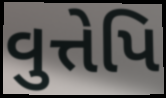
વુત્તેપિ